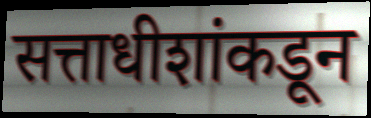
सत्ताधीशांकडून